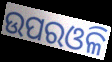
ଉପରଓଳି